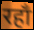
रहाँ